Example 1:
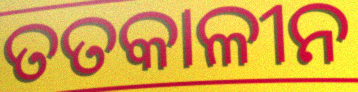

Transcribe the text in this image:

ତତକାଳୀନ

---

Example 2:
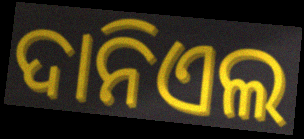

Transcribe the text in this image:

ଦାନିଏଲ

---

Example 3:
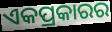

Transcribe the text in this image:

ଏକପ୍ରକାରର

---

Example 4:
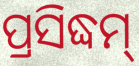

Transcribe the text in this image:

ପ୍ରସିଦ୍ଧମ୍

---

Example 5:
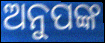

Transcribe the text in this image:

ଅନୁପଙ୍କ